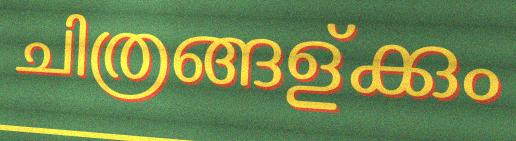
ചിത്രങ്ങള്ക്കും